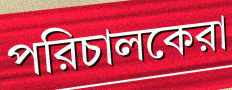
পরিচালকেরা